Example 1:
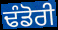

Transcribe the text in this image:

ਢੰਡੋਰੀ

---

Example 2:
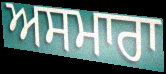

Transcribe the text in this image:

ਅਸਮਾਰਾ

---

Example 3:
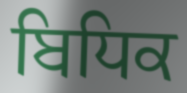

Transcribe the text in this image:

ਬਿਧਿਕ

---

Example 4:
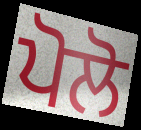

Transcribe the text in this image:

ਪੋਲੋ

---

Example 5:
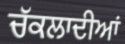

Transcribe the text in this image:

ਚੱਕਲਾਦੀਆਂ